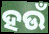
ହଉଁ